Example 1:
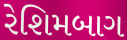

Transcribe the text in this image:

રેશિમબાગ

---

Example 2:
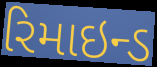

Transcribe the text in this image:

રિમાઇન્ડ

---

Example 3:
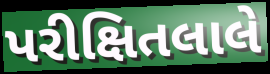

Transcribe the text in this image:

પરીક્ષિતલાલે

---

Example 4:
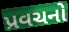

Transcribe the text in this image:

પ્રવચનો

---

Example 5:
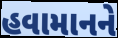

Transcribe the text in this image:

હવામાનને